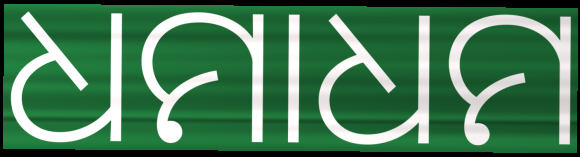
ଧମାଧମ